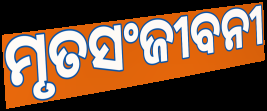
ମୃତସଂଜୀବନୀ